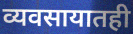
व्यवसायातही